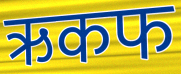
ऋकफ